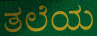
ತಲೆಯ